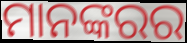
ମାନଙ୍କରର